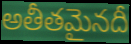
అతీతమైనదీ